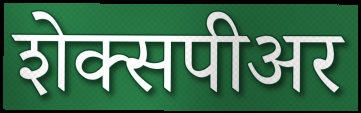
शेक्सपीअर